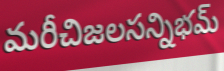
మరీచిజలసన్నిభమ్